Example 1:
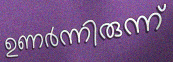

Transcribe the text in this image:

ഉണർന്നിരുന്ന്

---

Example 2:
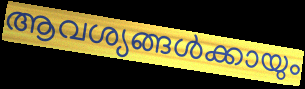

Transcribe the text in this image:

ആവശ്യങ്ങൾക്കായും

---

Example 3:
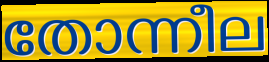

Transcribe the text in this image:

തോന്നീല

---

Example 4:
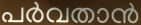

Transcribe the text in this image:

പർവതാൻ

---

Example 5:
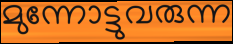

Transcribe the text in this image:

മുന്നോട്ടുവരുന്ന